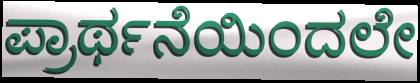
ಪ್ರಾರ್ಥನೆಯಿಂದಲೇ